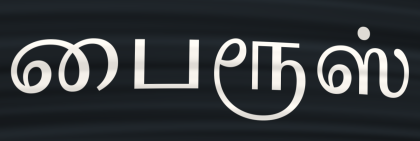
பைரூஸ்